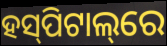
ହସ୍‌ପିଟାଲ୍‌ରେ